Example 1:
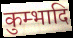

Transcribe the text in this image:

कुम्भादि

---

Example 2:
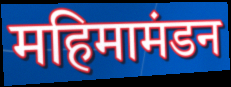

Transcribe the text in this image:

महिमामंडन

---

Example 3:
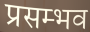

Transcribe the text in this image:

प्रसम्भव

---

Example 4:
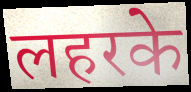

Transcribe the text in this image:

लहरके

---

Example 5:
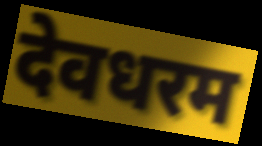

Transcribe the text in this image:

देवधरम